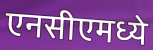
एनसीएमध्ये